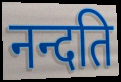
नन्दति